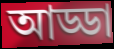
আড্ডা